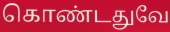
கொண்டதுவே